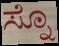
ಸ್ನೊ